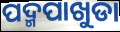
ପଦ୍ମପାଖୁଡା